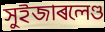
সুইজাৰলেণ্ড